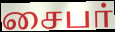
சைபர்